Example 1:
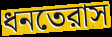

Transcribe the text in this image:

ধনতেরাস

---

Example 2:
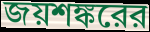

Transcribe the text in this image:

জয়শঙ্করের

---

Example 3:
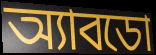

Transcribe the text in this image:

অ্যাবডো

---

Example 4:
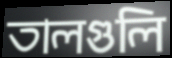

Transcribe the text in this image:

তালগুলি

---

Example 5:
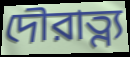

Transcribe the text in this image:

দৌরাত্ন্য